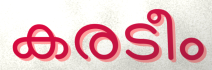
കരടീം